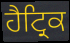
ਹੈਟ੍ਰਿਕ